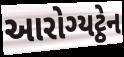
આરોગ્યટ્ઠેન